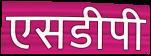
एसडीपी